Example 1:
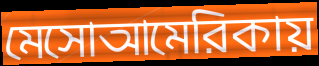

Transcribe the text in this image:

মেসোআমেরিকায়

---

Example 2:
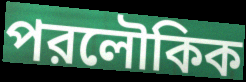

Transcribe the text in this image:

পরলৌকিক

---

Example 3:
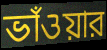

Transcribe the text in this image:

ভাঁওয়ার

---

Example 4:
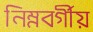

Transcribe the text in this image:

নিম্নবর্গীয়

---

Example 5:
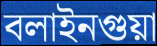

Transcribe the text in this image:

বলাইনগুয়া